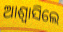
ଆଶ୍ୱାସିଲେ